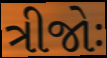
ત્રીજોઃ